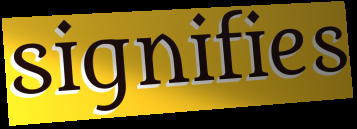
signifies